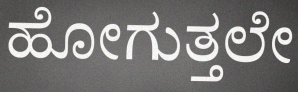
ಹೋಗುತ್ತಲೇ